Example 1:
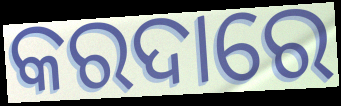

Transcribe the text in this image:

କରଦାରେ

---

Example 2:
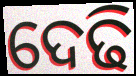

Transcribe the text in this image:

ଦେଢି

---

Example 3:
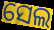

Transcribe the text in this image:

ସେଲ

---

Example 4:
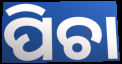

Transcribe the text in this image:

ପିଚା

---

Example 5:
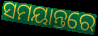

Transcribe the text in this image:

ସମୟାନ୍ତରେ